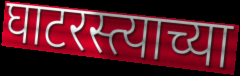
घाटरस्त्याच्या